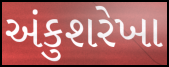
અંકુશરેખા